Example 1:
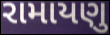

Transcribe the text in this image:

રામાયણુ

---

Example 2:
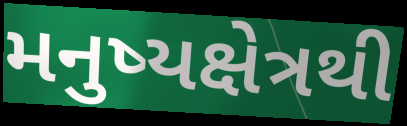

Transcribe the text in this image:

મનુષ્યક્ષેત્રથી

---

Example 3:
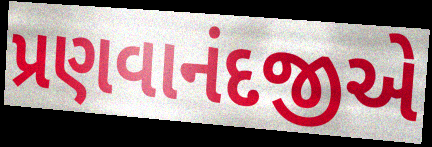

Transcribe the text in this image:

પ્રણવાનંદજીએ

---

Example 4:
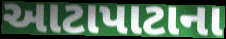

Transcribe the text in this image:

આટાપાટાના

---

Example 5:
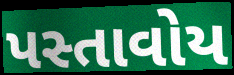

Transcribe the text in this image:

પસ્તાવોય